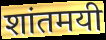
शांतमयी